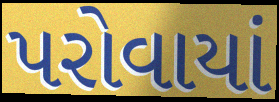
પરોવાયાં